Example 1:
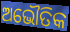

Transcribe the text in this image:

ଅଭୌତିକ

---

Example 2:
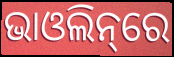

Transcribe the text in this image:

ଭାଓଲିନ୍‌ରେ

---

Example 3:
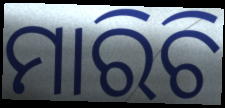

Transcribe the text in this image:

ମାରିଚି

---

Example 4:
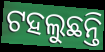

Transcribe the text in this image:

ଟହଲୁଛନ୍ତି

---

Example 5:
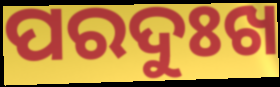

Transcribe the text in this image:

ପରଦୁଃଖ